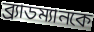
ব্র্যাডম্যানকে